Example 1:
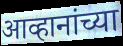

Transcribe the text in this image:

आव्हानांच्या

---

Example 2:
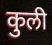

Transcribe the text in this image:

कुली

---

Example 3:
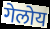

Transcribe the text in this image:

गेलोय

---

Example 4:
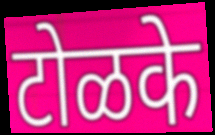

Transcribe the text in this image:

टोळके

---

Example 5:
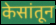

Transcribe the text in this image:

केसांतून